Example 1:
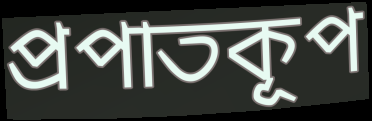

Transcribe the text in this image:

প্রপাতকূপ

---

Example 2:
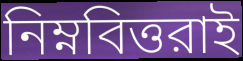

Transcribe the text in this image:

নিম্নবিত্তরাই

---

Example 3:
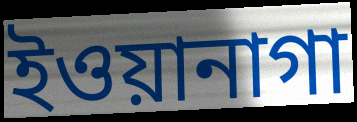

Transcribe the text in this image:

ইওয়ানাগা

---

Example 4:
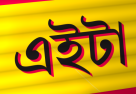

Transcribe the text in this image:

এইটা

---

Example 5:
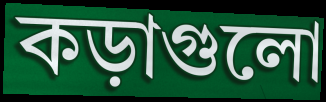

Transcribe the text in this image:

কড়াগুলো